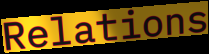
Relations